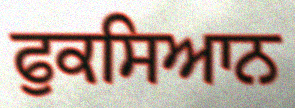
ਫੁਕਸਿਆਨ